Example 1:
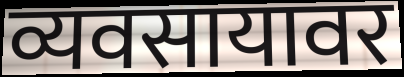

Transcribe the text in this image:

व्यवसायावर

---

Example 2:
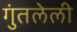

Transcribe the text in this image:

गुंतलेली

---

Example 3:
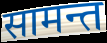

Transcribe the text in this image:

सामन्त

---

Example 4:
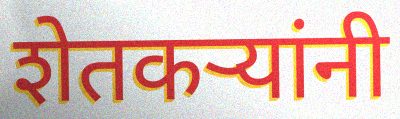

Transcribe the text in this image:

शेतकऱ्यांनी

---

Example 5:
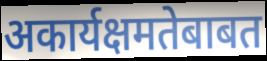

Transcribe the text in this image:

अकार्यक्षमतेबाबत